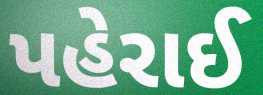
પહેરાઈ